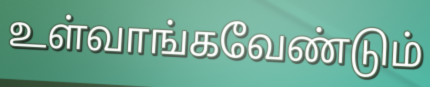
உள்வாங்கவேண்டும்